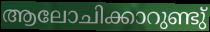
ആലോചിക്കാറുണ്ടു്